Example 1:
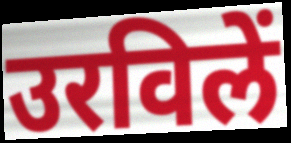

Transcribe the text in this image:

उरविलें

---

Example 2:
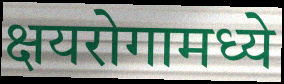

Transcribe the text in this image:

क्षयरोगामध्ये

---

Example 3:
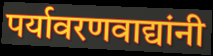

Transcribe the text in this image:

पर्यावरणवाद्यांनी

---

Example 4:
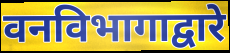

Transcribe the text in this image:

वनविभागाद्वारे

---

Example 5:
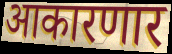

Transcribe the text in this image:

आकारणार